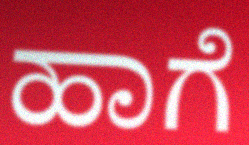
ಹಾಗೆ